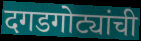
दगडगोट्यांची